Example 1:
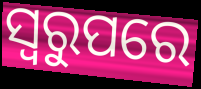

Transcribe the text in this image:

ସ୍ୱରୁପରେ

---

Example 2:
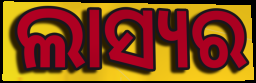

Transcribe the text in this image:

ଲାସ୍ୟର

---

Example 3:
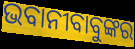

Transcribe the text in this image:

ଭବାନୀବାବୁଙ୍କର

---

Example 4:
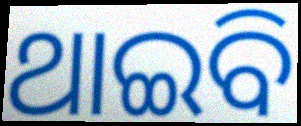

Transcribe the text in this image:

ଥାଇବି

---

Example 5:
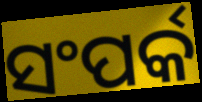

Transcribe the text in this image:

ସଂପର୍କ